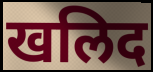
खलिद